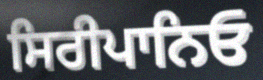
ਸਿਰੀਪਾਨਿਓ